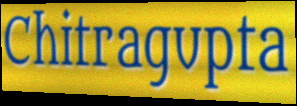
Chitragupta